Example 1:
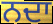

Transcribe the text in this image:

ਨਦਾ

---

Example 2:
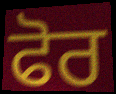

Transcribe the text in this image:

ਫੋਰ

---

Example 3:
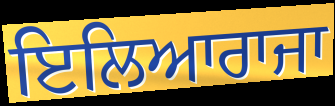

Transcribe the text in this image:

ਇਲਿਆਰਾਜਾ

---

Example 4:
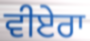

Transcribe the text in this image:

ਵੀਏਰਾ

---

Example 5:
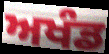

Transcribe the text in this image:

ਅਖੰਡ